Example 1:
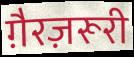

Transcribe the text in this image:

ग़ैरज़रूरी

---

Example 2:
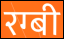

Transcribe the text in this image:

रग्बी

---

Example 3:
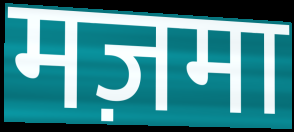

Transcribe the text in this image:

मज़मा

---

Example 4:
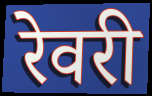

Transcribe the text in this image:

रेवरी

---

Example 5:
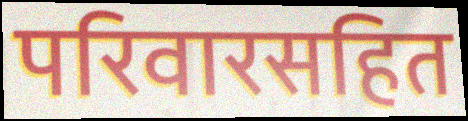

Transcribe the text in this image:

परिवारसहित